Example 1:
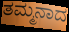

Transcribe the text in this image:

ತಮ್ಮನಾದ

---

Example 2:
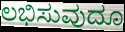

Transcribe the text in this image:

ಲಭಿಸುವುದೂ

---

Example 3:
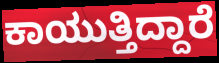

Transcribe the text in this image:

ಕಾಯುತ್ತಿದ್ದಾರೆ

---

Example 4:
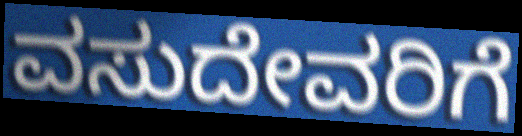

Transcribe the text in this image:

ವಸುದೇವರಿಗೆ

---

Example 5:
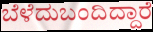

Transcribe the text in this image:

ಬೆಳೆದುಬಂದಿದ್ದಾರೆ